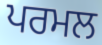
ਪਰਮਲ